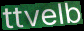
ttvelb